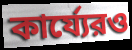
কার্য্যেরও